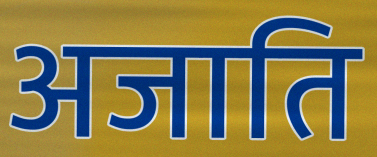
अजाति